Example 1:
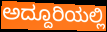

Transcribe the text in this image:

ಅದ್ದೂರಿಯಲ್ಲಿ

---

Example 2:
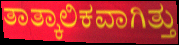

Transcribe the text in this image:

ತಾತ್ಕಾಲಿಕವಾಗಿತ್ತು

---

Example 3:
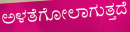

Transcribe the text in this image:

ಅಳತೆಗೋಲಾಗುತ್ತದೆ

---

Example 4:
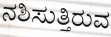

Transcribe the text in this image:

ನಶಿಸುತ್ತಿರುವ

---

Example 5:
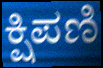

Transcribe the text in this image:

ಕ್ಷಿಪಣಿ